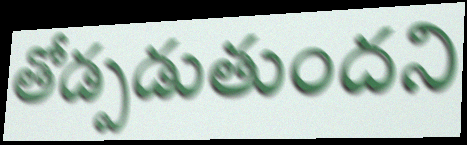
తోడ్పడుతుందని